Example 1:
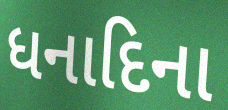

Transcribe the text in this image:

ધનાદિના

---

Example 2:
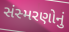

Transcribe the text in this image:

સંસ્મરણોનું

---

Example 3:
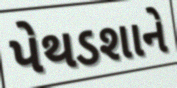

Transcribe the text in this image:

પેથડશાને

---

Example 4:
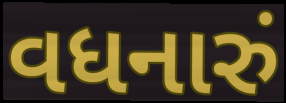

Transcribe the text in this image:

વધનારું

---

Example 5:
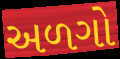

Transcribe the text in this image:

અળગો